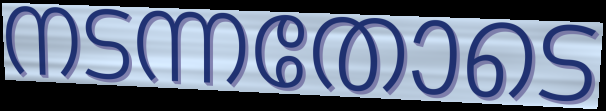
നടന്നതോടെ